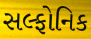
સલ્ફોનિક